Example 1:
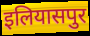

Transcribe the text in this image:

इलियासपुर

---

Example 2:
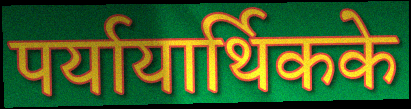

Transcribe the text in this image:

पर्यायार्थिकके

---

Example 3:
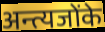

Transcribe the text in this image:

अन्त्यजोंके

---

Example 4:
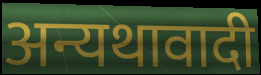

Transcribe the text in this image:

अन्यथावादी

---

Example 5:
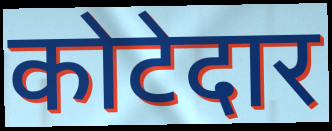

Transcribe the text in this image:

कोटेदार